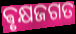
ଵୃକ୍ଷଜଗତ